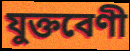
যুক্তবেণী